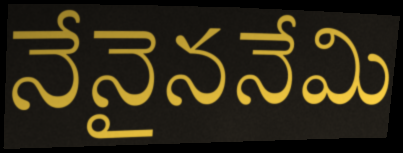
నేనైననేమి